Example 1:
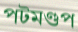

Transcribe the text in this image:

পটমণ্ডপ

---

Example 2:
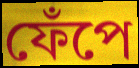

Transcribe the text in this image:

ফেঁপে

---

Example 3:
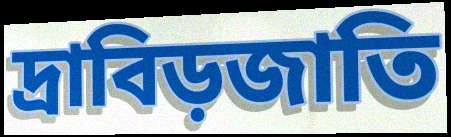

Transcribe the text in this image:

দ্রাবিড়জাতি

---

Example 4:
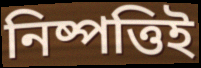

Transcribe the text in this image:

নিষ্পত্তিই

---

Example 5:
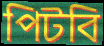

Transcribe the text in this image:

পিটবি